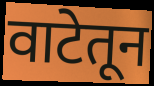
वाटेतून